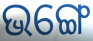
ଭଙ୍ଗେ